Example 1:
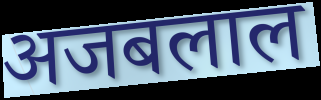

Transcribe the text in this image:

अजबलाल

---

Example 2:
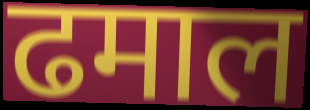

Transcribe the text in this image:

ढमाल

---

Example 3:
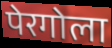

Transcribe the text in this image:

पेरगोला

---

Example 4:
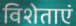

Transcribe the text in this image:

विशेताएं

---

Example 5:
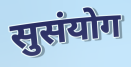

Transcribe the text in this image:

सुसंयोग